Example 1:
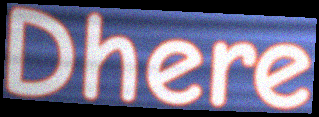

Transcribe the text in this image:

Dhere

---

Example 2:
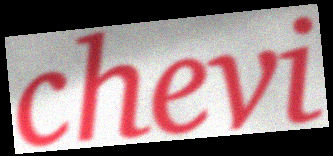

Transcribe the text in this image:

chevi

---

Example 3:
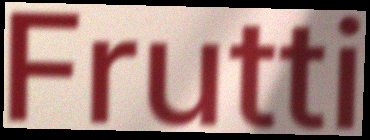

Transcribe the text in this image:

Frutti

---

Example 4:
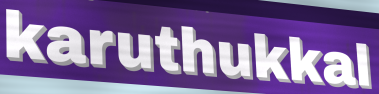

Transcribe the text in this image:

karuthukkal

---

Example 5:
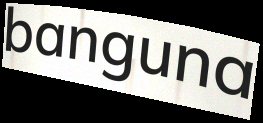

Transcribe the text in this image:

banguna